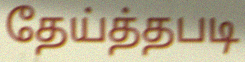
தேய்த்தபடி